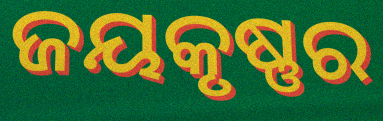
ଜୟକୃଷ୍ଣର